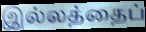
இல்லத்தைப்